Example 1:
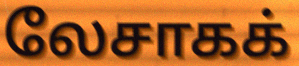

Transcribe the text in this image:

லேசாகக்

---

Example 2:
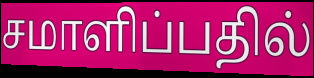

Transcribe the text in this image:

சமாளிப்பதில்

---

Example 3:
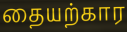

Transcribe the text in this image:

தையற்கார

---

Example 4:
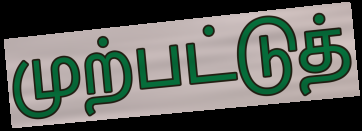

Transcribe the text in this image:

முற்பட்டுத்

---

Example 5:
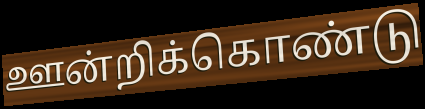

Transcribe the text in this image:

ஊன்றிக்கொண்டு